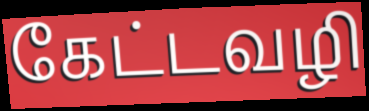
கேட்டவழி